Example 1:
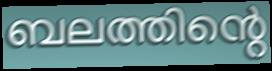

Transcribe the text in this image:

ബലത്തിന്റെ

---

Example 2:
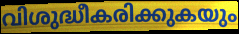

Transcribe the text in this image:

വിശുദ്ധീകരിക്കുകയും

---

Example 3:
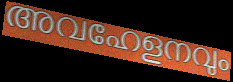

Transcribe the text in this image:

അവഹേളനവും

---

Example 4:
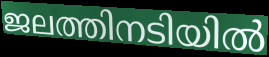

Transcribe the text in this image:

ജലത്തിനടിയിൽ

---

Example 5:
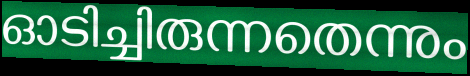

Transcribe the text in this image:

ഓടിച്ചിരുന്നതെന്നും